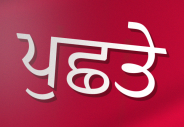
ਪੁਛਤੇ